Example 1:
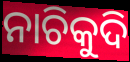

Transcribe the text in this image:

ନାଚିକୁଦି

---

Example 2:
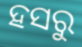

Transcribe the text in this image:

ହସରୁ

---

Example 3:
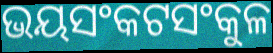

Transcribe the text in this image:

ଭୟସଂକଟସଂକୁଳ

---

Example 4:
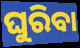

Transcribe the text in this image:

ଘୁରିବା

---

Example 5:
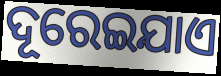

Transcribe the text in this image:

ଦୂରେଇଯାଏ